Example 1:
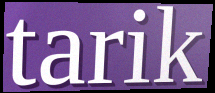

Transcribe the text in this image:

tarik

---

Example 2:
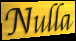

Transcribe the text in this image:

Nulla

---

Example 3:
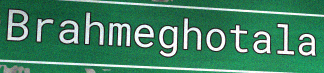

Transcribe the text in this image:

Brahmeghotala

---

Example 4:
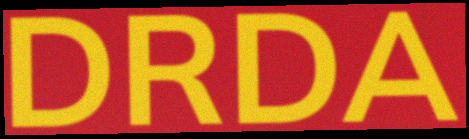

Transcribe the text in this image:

DRDA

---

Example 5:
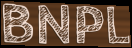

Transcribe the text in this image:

BNPL